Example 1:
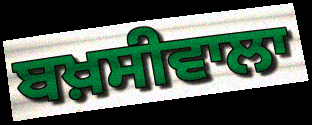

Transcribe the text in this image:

ਬਖ਼ਸੀਵਾਲਾ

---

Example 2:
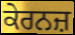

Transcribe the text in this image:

ਕੇਰਨਜ਼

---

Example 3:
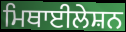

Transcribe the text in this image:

ਮਿਥਾਈਲੇਸ਼ਨ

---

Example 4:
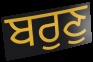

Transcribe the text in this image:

ਬਰੁਣੁ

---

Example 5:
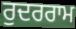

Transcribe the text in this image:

ਰੁਦਰਰਾਮ